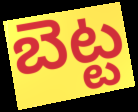
బెట్ట